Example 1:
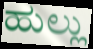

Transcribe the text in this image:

ಹುಲ್ಲು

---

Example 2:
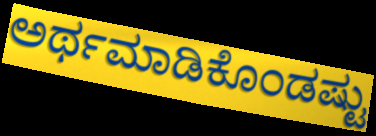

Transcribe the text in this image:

ಅರ್ಥಮಾಡಿಕೊಂಡಷ್ಟು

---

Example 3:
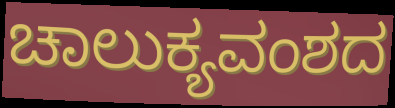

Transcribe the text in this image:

ಚಾಲುಕ್ಯವಂಶದ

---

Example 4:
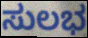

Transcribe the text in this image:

ಸುಲಭ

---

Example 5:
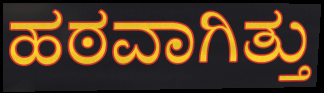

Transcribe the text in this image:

ಹಠವಾಗಿತ್ತು